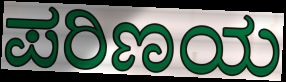
ಪರಿಣಯ